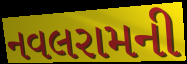
નવલરામની